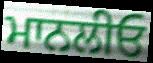
ਮਾਨਲੀਓ